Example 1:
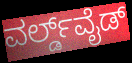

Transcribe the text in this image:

ವರ್ಲ್ಡ್‌ವೈಡ್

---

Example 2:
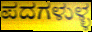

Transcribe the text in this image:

ಪದಗಳುಳ್ಳ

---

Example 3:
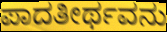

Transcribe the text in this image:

ಪಾದತೀರ್ಥವನು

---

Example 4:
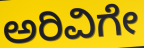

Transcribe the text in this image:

ಅರಿವಿಗೇ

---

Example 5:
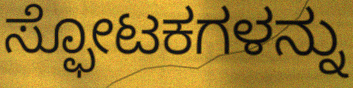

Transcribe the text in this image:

ಸ್ಫೋಟಕಗಳನ್ನು